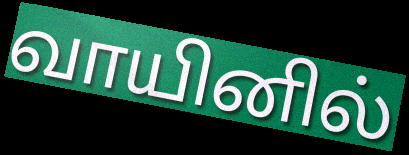
வாயினில்